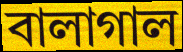
বালাগাল